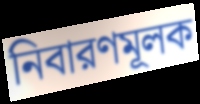
নিবারণমূলক